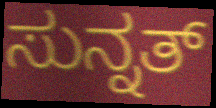
ಸುನ್ನತ್